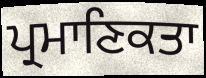
ਪ੍ਰਮਾਣਿਕਤਾ